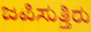
ಜಪಿಸುತ್ತಿರು